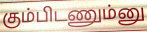
கும்பிடணும்னு